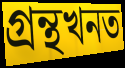
গ্ৰন্থখনত